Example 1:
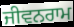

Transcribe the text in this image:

ਜੀਵਨਰਾਮ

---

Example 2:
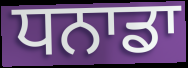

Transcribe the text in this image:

ਧਨਾਡਾ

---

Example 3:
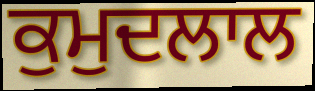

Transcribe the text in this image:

ਕੁਮੁਦਲਾਲ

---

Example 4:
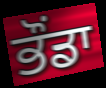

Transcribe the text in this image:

ਭੌਂਡਾ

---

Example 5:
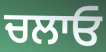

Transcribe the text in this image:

ਚਲਾਓ